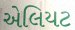
એલિયટ